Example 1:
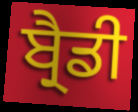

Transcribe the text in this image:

ਬ੍ਰੈਡੀ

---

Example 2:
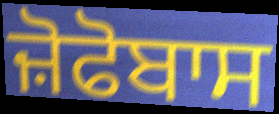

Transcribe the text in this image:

ਜ਼ੋਫੋਬਾਸ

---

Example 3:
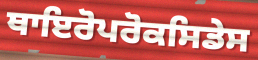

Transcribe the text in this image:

ਥਾਇਰੋਪਰੋਕਸਿਡੇਸ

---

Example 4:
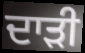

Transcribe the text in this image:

ਦਾੜੀ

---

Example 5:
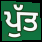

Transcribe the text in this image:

ਪੁੱਤ